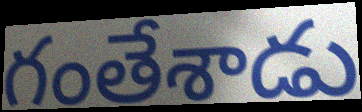
గంతేశాడు